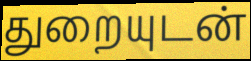
துறையுடன்